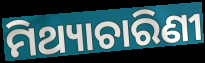
ମିଥ୍ୟାଚାରିଣୀ